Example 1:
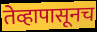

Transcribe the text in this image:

तेव्हापासूनच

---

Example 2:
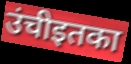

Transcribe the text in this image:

उंचीइतका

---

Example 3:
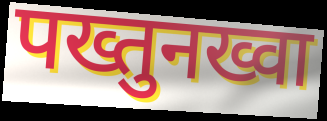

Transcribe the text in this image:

पख्तुनख्वा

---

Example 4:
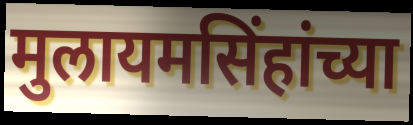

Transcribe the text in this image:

मुलायमसिंहांच्या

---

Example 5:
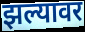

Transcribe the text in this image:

झल्यावर